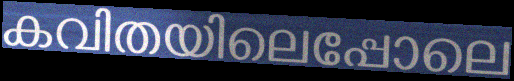
കവിതയിലെപ്പോലെ